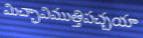
మిచ్ఛావిముత్తిపచ్చయా